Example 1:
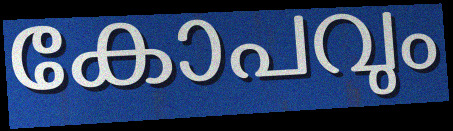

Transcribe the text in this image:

കോപവും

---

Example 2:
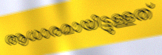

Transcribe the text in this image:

ആധാരമായിട്ടുള്ളത്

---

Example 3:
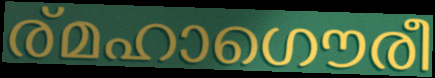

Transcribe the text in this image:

ര്മഹാഗൌരീ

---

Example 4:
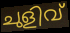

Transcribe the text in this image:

ചുളിവ്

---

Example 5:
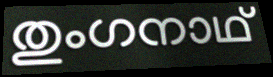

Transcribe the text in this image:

തുംഗനാഥ്